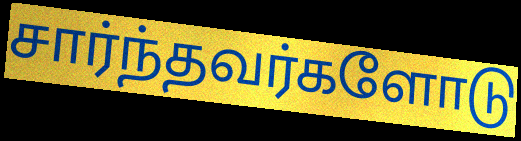
சார்ந்தவர்களோடு